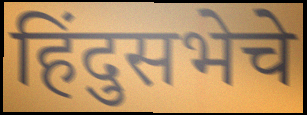
हिंदुसभेचे